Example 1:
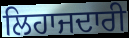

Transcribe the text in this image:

ਲਿਹਾਜਦਾਰੀ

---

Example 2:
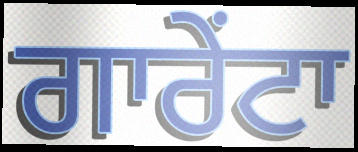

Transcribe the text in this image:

ਗਾਰੇਂਟਾ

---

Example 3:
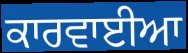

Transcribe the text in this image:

ਕਾਰਵਾਈਆ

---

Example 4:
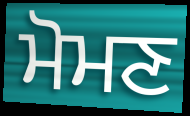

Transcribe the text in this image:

ਮੋਮਣ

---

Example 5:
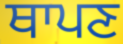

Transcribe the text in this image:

ਥਾਪਣ